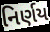
નિર્ણય